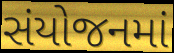
સંયોજનમાં